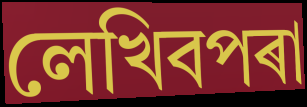
লেখিবপৰা